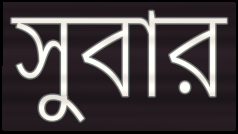
সুবার